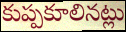
కుప్పకూలినట్లు